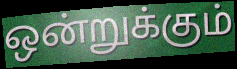
ஒன்றுக்கும்